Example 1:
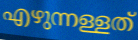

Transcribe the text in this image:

എഴുന്നള്ളത്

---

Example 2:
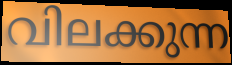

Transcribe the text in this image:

വിലക്കുന്ന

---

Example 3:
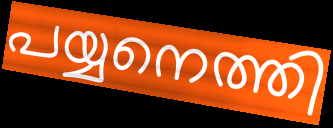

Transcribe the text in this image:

പയ്യനെത്തി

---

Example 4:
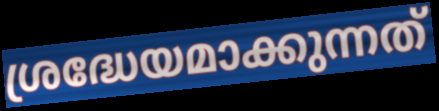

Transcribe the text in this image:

ശ്രദ്ധേയമാക്കുന്നത്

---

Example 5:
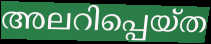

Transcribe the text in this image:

അലറിപ്പെയ്ത